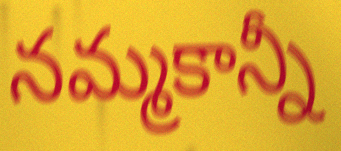
నమ్మకాన్నీ